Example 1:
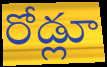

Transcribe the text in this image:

రోడ్లూ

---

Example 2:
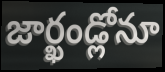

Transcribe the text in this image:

జార్ఖండ్లోనూ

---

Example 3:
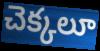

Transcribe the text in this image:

చెక్కలూ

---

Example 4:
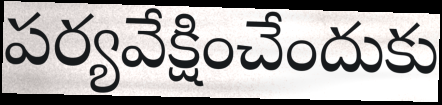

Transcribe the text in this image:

పర్యవేక్షించేందుకు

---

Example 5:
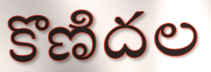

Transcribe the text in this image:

కొణిదల